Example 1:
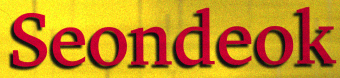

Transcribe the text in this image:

Seondeok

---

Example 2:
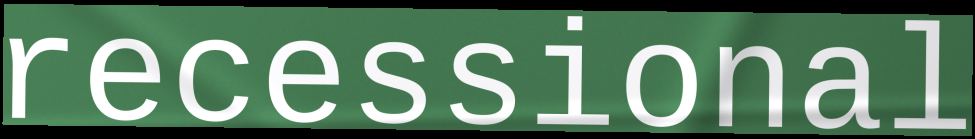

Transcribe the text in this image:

recessional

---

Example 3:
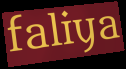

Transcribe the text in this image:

faliya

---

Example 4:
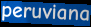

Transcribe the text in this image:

peruviana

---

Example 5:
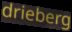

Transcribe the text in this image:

drieberg